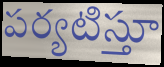
పర్యటిస్తూ